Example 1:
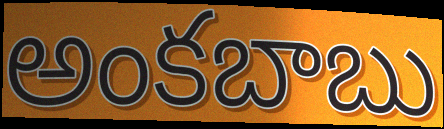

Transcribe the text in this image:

అంకబాబు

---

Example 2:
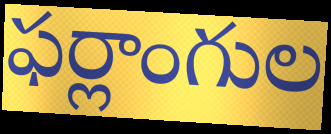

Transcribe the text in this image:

ఫర్లాంగుల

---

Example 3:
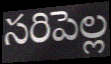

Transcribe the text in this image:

సరిపెల్ల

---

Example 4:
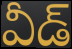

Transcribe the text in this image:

వీడ్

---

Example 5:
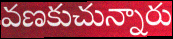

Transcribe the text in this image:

వణకుచున్నారు